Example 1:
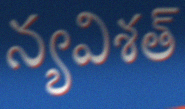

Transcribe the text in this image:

న్యవిశత్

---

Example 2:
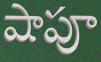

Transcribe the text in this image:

షాపూ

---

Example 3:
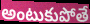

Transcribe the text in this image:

అంటుకుపోతే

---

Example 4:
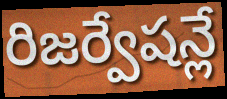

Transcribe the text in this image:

రిజర్వేషన్లే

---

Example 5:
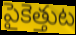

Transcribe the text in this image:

పైకెత్తుట